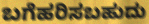
ಬಗೆಹರಿಸಬಹುದು